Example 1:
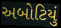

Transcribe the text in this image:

અબોટિયું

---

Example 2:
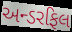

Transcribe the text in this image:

અન્ડરફિલ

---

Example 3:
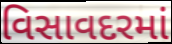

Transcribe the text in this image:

વિસાવદરમાં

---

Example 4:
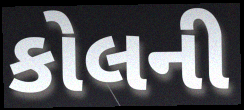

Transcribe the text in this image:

કોલની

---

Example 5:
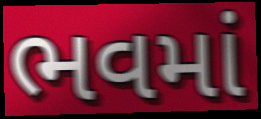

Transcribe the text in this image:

ભવમાં